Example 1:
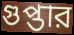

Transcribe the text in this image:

গুপ্তার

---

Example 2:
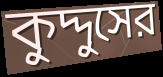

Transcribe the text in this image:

কুদ্দুসের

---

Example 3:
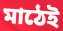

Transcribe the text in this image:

মাঠেই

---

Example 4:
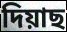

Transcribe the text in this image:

দিয়াছ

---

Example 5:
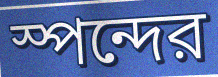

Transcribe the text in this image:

স্পন্দের